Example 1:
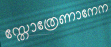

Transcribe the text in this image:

സ്തോത്രേണാനേന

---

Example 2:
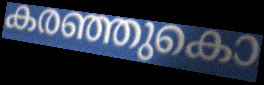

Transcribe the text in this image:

കരഞ്ഞുകൊ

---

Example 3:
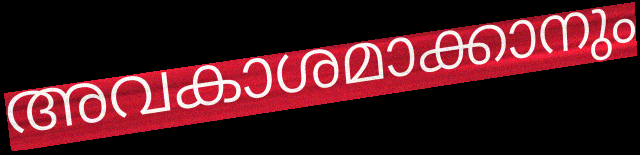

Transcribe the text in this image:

അവകാശമാക്കാനും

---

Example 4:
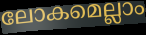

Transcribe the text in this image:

ലോകമെല്ലാം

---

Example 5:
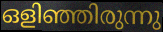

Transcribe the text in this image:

ഒളിഞ്ഞിരുന്നു